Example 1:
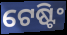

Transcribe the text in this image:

ଟେଷ୍ଟିଂ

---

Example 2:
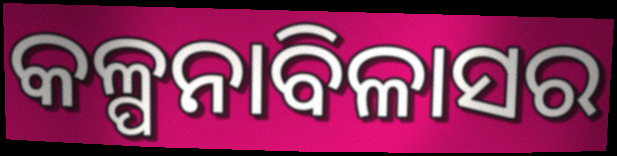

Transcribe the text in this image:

କଳ୍ପନାବିଳାସର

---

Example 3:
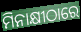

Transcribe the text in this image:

ମିନାକ୍ଷୀଠାରେ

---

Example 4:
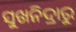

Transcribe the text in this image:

ସୁଖନିଦ୍ରାରୁ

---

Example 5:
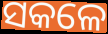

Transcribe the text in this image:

ସକଳେ